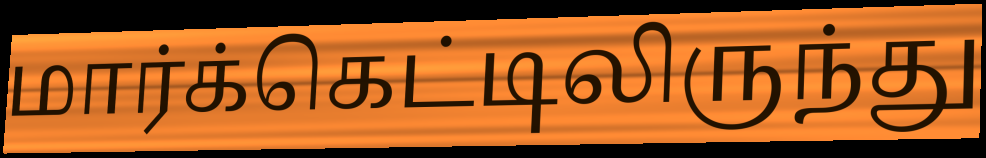
மார்க்கெட்டிலிருந்து